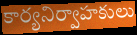
కార్యనిర్వాహకులు